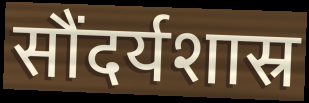
सौंदर्यशास्र